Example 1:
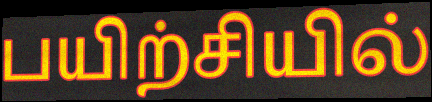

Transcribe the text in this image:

பயிற்சியில்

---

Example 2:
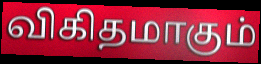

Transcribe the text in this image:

விகிதமாகும்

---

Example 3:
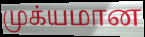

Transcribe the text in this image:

முக்யமான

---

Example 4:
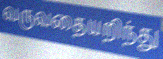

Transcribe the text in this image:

வருவதையறிந்து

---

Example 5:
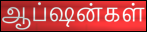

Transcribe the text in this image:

ஆப்ஷன்கள்